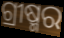
ଗ୍ରୀଷ୍ମର